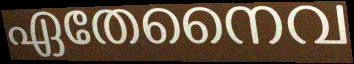
ഏതേനൈവ